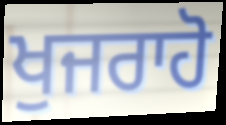
ਖੁਜਰਾਹੋ